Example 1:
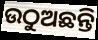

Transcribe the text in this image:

ଉଠୁଅଛନ୍ତି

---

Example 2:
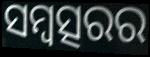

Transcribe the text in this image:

ସମ୍ବତ୍ସରର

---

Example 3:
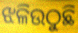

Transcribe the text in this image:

ଝଳିଉଠୁଛି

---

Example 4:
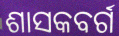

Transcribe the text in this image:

ଶାସକବର୍ଗ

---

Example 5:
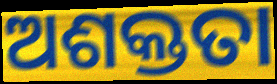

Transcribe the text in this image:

ଅଶକ୍ତତା